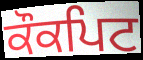
ਕੌਕਪਿਟ